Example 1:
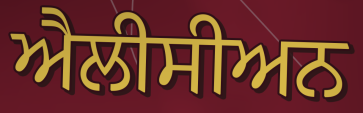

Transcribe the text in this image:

ਐਲੀਸੀਅਨ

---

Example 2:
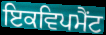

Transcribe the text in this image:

ਇਕਵਿਪਮੈਂਟ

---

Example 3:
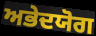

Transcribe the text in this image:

ਅਭੇਦਯੋਗ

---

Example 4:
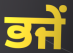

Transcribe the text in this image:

ਭਜੇਂ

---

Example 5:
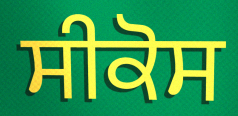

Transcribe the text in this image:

ਸੀਕੋਸ